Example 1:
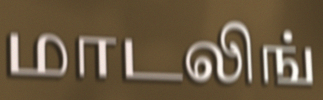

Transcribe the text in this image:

மாடலிங்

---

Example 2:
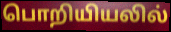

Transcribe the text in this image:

பொறியியலில்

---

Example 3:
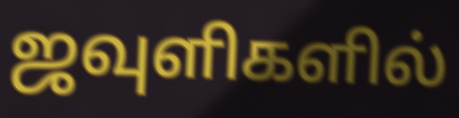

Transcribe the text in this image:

ஜவுளிகளில்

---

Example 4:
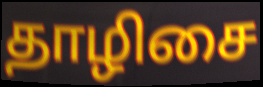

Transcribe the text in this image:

தாழிசை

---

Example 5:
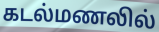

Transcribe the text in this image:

கடல்மணலில்